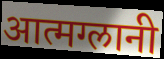
आत्मग्लानी